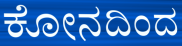
ಕೋನದಿಂದ